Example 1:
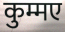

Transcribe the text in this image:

कुम्मए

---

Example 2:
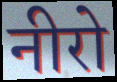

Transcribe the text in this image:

नीरो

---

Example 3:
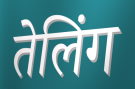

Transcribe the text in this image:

तेलिंग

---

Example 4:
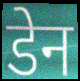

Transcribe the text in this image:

डेन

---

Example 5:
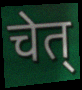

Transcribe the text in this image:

चेत्